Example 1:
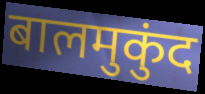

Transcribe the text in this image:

बालमुकुंद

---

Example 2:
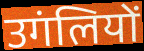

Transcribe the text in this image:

उगंलियों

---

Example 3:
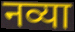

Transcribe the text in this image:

नव्या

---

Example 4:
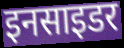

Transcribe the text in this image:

इनसाइडर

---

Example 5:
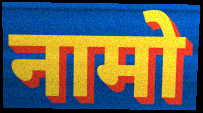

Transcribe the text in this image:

नामो